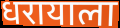
धरायाला